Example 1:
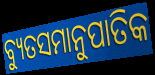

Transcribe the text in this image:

ବ୍ୟୁତସମାନୁପାତିକ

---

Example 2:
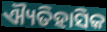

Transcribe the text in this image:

ଐ୍ୟତିହାସିକ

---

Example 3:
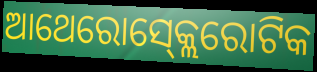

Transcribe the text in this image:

ଆଥେରୋସ୍କ୍ଲେରୋଟିକ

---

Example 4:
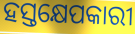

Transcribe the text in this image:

ହସ୍ତକ୍ଷେପକାରୀ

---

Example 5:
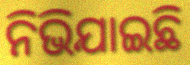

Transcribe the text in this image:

ନିଭିଯାଇଛି